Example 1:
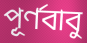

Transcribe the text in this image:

পূর্ণবাবু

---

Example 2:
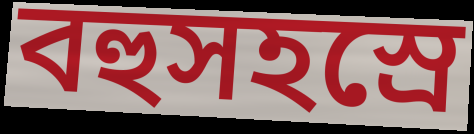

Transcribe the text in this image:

বহুসহস্রে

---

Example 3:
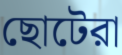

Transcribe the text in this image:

ছোটেরা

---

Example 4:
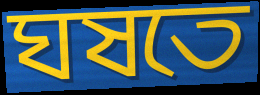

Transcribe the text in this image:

ঘষতে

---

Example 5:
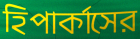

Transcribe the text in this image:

হিপার্কাসের